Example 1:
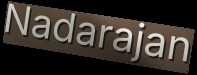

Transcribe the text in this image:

Nadarajan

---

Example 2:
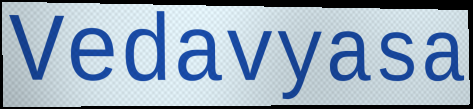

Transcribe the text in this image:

Vedavyasa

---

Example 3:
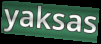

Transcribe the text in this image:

yaksas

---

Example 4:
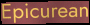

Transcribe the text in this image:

Epicurean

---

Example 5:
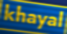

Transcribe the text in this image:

khayal